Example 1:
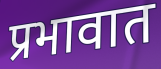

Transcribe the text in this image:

प्रभावात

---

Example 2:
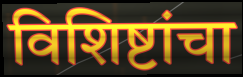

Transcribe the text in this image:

विशिष्टांचा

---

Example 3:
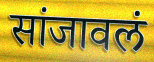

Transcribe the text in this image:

सांजावलं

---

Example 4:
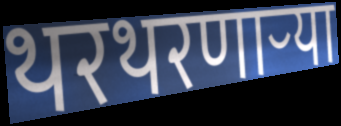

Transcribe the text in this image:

थरथरणाऱ्या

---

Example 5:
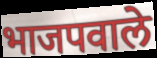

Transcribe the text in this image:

भाजपवाले